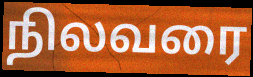
நிலவரை